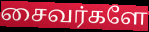
சைவர்களே